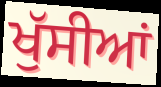
ਖੁੱਸੀਆਂ